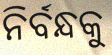
ନିର୍ବନ୍ଧକୁ